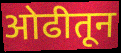
ओढीतून